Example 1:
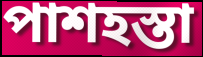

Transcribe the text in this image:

পাশহস্তা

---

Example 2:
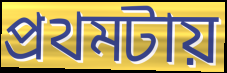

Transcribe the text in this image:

প্রথমটায়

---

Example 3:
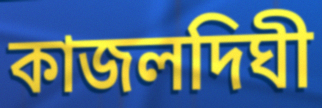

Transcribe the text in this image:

কাজলদিঘী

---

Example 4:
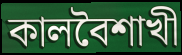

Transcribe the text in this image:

কালবৈশাখী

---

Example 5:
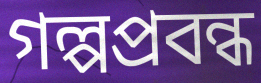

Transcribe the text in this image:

গল্পপ্রবন্ধ